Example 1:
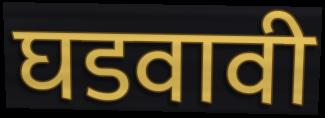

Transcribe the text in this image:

घडवावी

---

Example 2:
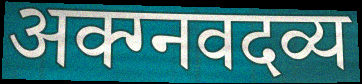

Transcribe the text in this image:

अक्ग्नवदव्य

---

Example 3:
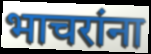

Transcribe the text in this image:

भाचरांना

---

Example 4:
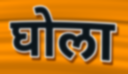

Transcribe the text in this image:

घोला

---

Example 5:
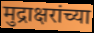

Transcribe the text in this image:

मुद्राक्षरांच्या